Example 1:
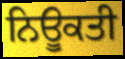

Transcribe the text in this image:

ਨਿਊਕਤੀ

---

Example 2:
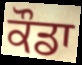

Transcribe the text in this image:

ਕੌਡਾ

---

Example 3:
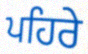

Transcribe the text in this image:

ਪਹਿਰੇ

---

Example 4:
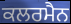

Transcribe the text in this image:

ਕਲਰਮੈਨ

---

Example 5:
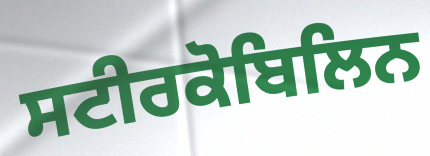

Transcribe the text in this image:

ਸਟੀਰਕੋਬਿਲਿਨ